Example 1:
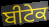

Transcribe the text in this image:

ਬੀਟੇਕ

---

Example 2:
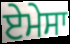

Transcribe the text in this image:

ਏਮੇਸਾ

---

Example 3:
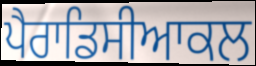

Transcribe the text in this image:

ਪੈਰਾਡਿਸੀਆਕਲ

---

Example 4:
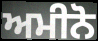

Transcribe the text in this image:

ਅਮੀਨੋ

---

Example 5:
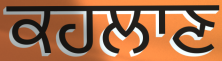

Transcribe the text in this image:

ਕਹਲਾਣ